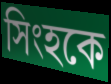
সিংহকে